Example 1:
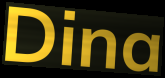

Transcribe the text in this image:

Dina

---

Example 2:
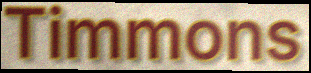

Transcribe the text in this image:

Timmons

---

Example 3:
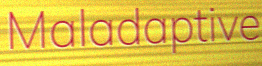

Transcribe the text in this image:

Maladaptive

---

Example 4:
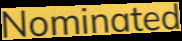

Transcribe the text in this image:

Nominated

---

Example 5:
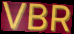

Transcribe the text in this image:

VBR